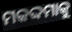
ମକଦ୍ଦମାକୁ